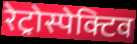
रेट्रोस्पेक्टिव